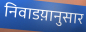
निवाडय़ानुसार